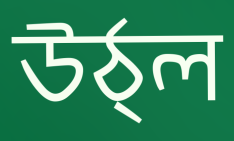
উঠ্ল